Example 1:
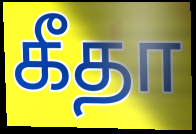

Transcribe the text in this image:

கீதா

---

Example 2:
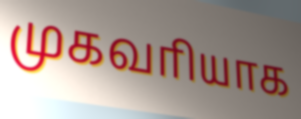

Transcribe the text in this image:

முகவரியாக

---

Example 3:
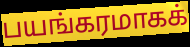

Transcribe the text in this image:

பயங்கரமாகக்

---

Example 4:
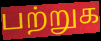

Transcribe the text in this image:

பற்றுக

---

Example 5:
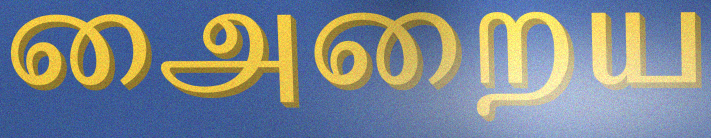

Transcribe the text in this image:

அைறைய